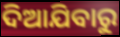
ଦିଆଯିବାରୁ